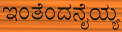
ಇಂತೆಂದನೈಯ್ಯ